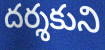
దర్శకుని